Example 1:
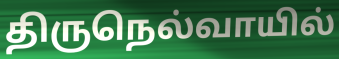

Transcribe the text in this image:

திருநெல்வாயில்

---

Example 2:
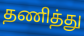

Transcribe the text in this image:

தணித்து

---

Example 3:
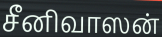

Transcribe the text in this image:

சீனிவாஸன்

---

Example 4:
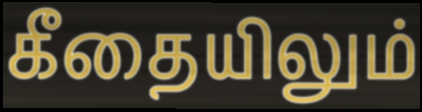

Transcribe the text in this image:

கீதையிலும்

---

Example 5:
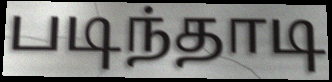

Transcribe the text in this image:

படிந்தாடி